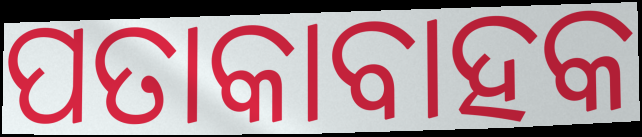
ପତାକାବାହକ